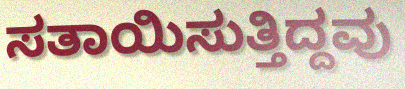
ಸತಾಯಿಸುತ್ತಿದ್ದವು